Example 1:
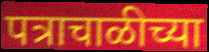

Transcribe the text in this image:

पत्राचाळीच्या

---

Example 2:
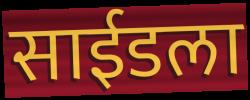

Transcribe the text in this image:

साईडला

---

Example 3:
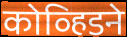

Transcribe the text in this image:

कोव्हिडने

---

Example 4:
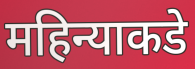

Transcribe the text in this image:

महिन्याकडे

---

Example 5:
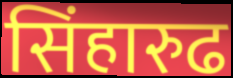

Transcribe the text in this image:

सिंहारुढ